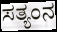
ಸತ್ಯಂನ